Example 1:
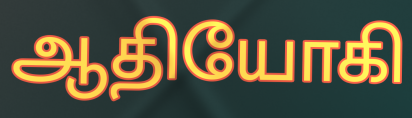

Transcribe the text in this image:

ஆதியோகி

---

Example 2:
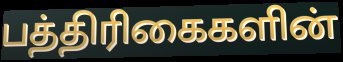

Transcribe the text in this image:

பத்திரிகைகளின்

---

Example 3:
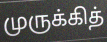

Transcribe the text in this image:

முருக்கித்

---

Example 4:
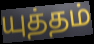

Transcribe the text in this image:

யுத்தம்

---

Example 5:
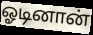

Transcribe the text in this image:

ஓடினான்